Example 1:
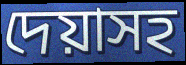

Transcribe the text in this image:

দেয়াসহ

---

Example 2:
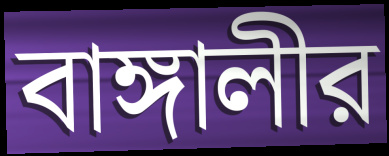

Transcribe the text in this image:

বাঙ্গালীর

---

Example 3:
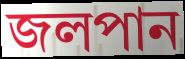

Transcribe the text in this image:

জলপান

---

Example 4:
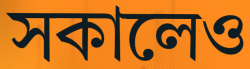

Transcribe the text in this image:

সকালেও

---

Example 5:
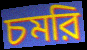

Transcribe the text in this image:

চমরি